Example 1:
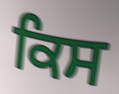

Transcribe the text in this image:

ਕਿਸ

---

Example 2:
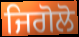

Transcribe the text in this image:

ਜਿਗੋਲੋ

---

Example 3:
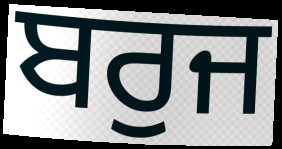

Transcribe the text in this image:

ਬਰੁਜ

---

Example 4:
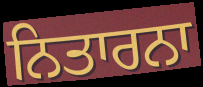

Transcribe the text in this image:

ਨਿਤਾਰਨਾ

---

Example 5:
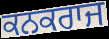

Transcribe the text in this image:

ਕਨਕਰਾਜ